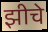
झीचे